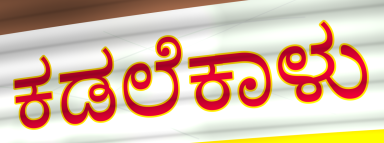
ಕಡಲೆಕಾಳು